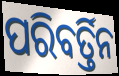
ପରିବର୍ତ୍ତିନ